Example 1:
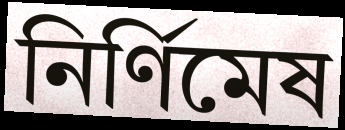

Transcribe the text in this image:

নির্ণিমেষ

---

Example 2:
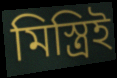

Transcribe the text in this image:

মিস্ত্রিই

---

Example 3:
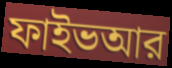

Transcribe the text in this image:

ফাইভআর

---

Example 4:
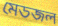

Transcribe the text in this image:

মেডজল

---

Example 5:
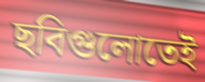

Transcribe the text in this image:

ছবিগুলোতেই